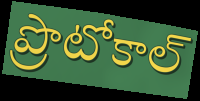
ప్రొటోకాల్